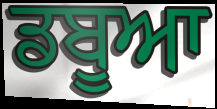
ਡਬੂਆ